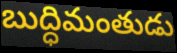
బుద్ధిమంతుడు